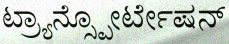
ಟ್ರ್ಯಾನ್ಸ್ಪೋರ್ಟೇಷನ್